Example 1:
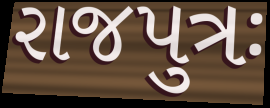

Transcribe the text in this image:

રાજપુત્રઃ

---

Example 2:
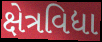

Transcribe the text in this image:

ક્ષેત્રવિદ્યા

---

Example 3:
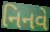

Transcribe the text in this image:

નિનવે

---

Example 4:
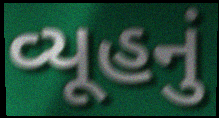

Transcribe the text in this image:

વ્યૂહનું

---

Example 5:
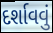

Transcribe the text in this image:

દર્શાવવું